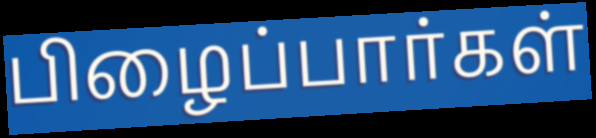
பிழைப்பார்கள்